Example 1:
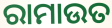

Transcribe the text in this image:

ରାମାଉତ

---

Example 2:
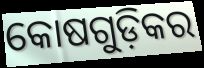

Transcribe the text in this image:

କୋଷଗୁଡ଼ିକର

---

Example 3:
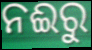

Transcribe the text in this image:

ନଈରୁ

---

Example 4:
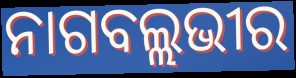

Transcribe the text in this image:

ନାଗବଲ୍ଲଭୀର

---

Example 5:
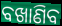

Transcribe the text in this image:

ବଖାଣିବ